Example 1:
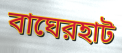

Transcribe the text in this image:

বাঘেরহাট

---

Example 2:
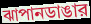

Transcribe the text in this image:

ঝাপানডাঙার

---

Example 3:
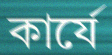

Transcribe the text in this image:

কার্যে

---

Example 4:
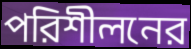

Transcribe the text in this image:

পরিশীলনের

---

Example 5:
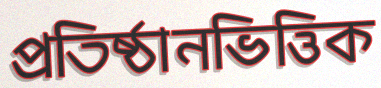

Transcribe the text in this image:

প্রতিষ্ঠানভিত্তিক